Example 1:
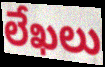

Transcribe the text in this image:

లేఖలు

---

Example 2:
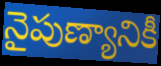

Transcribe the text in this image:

నైపుణ్యానికీ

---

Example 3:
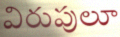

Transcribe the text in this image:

విరుపులూ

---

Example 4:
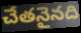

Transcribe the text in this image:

చేతనైనది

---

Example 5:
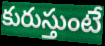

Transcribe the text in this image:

కురుస్తుంటే